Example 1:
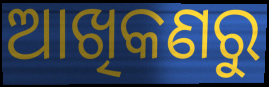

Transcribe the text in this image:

ଆଖିକଣରୁ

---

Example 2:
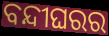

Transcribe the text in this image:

ବନ୍ଦୀଘରର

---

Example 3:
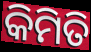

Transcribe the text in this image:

କିମିତି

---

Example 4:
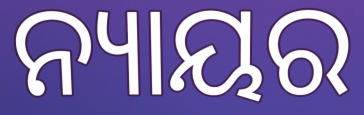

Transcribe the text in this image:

ନ୍ୟାୟର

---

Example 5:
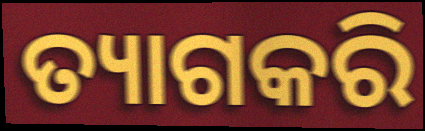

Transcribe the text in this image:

ତ୍ୟାଗକରି